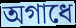
অগাধে